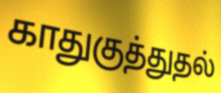
காதுகுத்துதல்